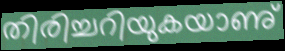
തിരിച്ചറിയുകയാണു്